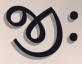
જીઃ